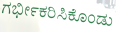
ಗರ್ಭೀಕರಿಸಿಕೊಂಡು